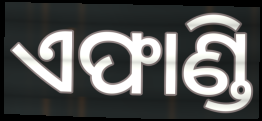
ଏଫାଣ୍ଡି